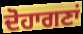
ਦੋਹਾਗਣਾਂ